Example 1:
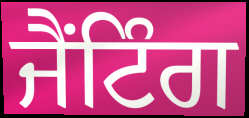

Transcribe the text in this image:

ਜੈਂਟਿੰਗ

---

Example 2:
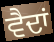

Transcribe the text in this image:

ਵੈਦਾਂ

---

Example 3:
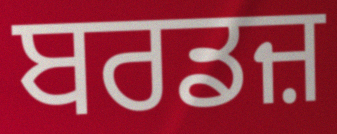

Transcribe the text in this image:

ਬਰਡਜ਼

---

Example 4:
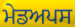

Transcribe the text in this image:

ਮੇਡਅਪਸ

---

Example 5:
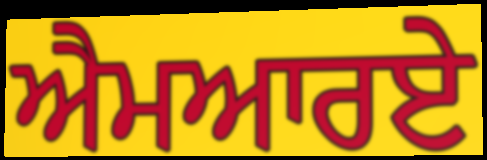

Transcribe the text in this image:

ਐਮਆਰਏ